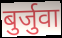
बुर्जुवा